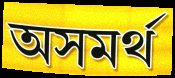
অসমর্থ